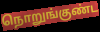
நொறுங்குண்ட